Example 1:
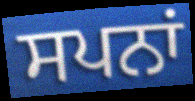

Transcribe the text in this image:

ਸਪਨਾਂ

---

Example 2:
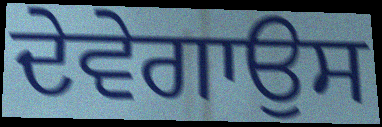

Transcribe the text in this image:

ਦੇਵੇਗਾਉਸ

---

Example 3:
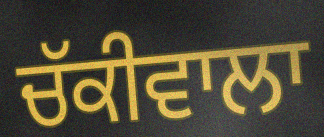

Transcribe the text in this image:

ਚੱਕੀਵਾਲਾ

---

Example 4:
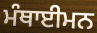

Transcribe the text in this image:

ਮੰਥਾਈਮਨ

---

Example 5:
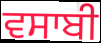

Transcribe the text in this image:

ਵਸਾਬੀ